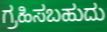
ಗ್ರಹಿಸಬಹುದು